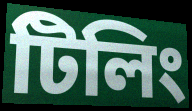
টিলিং